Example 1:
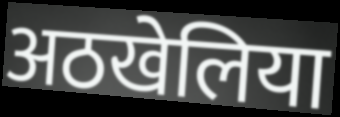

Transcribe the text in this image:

अठखेलिया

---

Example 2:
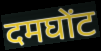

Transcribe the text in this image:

दमघोंट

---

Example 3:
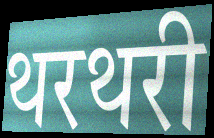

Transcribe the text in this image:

थरथरी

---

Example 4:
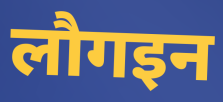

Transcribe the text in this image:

लौगइन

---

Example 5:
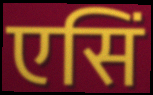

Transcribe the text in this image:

एसिं